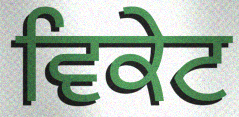
ਵਿਕੇਟ